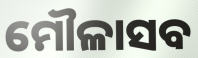
ମୌଳାସବ